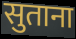
सुताना